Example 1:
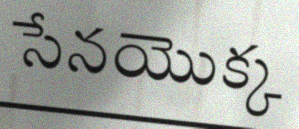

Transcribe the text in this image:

సేనయొక్క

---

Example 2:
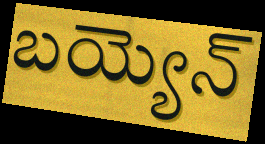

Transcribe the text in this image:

బయ్యెన్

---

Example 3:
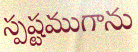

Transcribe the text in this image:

స్పష్టముగాను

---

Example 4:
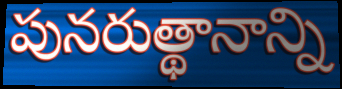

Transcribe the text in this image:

పునరుత్థానాన్ని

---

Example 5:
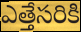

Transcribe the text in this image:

ఎత్తేసరికి